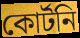
কোর্টনি